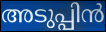
അടുപ്പിൻ